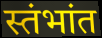
स्तंभांत